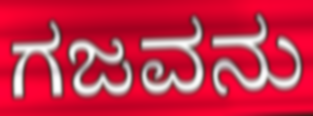
ಗಜವನು